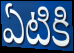
ఏటికి